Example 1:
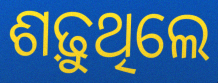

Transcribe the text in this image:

ଶଢ଼ୁଥିଲେ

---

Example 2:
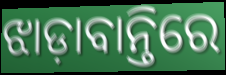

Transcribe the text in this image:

ଝାଡ଼ାବାନ୍ତିରେ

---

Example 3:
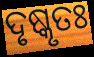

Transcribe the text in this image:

ଦୃଷ୍କୃତଃ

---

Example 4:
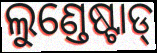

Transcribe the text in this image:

ଲୁଣ୍ଡେଷ୍ଟାଡ୍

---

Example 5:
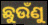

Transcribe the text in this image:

ଛୁଉଁଣୁ